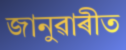
জানুৱাৰীত